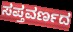
ಸಪ್ತವರ್ಣದ